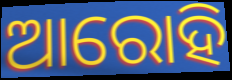
ଆରୋହି